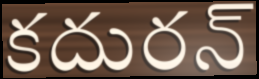
కదురన్